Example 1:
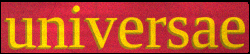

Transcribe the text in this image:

universae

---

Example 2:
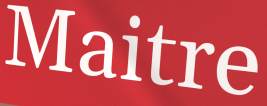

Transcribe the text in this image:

Maitre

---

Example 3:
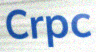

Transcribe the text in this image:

Crpc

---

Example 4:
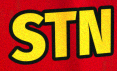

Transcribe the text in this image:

STN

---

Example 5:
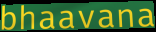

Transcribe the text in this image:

bhaavana